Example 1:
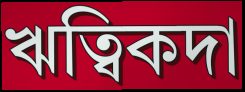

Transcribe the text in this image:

ঋত্বিকদা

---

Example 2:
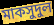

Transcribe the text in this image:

মাকসুদুল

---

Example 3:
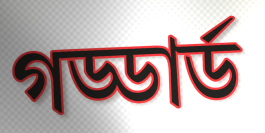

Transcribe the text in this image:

গড্ডার্ড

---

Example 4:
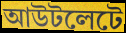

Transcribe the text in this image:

আউটলেটে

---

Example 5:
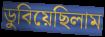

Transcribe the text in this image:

ডুবিয়েছিলাম